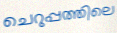
ചെറുപ്പത്തിലെ